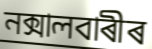
নক্সালবাৰীৰ